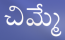
చిమ్మే